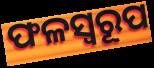
ଫଳସ୍ୱରୂପ